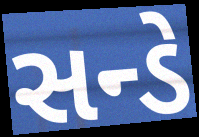
સન્ડે